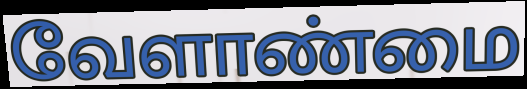
வேளாண்மை